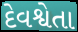
દેવશ્વેતા